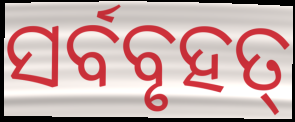
ସର୍ବବୃହତ୍